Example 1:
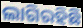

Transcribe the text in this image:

ଲାଗିରହିଛି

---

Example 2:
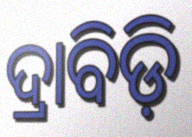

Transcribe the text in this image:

ଦ୍ରାବିଡ଼ି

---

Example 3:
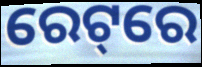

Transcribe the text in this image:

ରେଟ୍‌ରେ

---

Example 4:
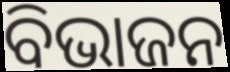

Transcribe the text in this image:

ବିଭାଜନ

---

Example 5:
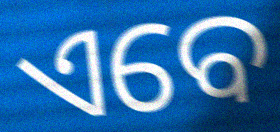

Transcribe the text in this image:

ଏବେ